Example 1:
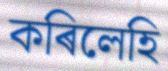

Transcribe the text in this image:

কৰিলেহি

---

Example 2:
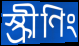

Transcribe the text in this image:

স্ক্ৰীণিং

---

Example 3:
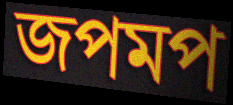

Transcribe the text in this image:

জপমপ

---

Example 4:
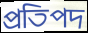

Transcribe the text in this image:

প্ৰতিপদ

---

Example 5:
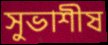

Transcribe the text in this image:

সুভাশীষ